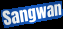
Sangwan